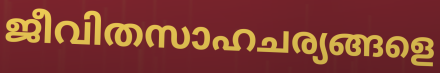
ജീവിതസാഹചര്യങ്ങളെ